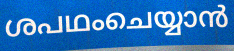
ശപഥംചെയ്യാൻ